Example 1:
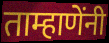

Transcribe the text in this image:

ताम्हाणेंनी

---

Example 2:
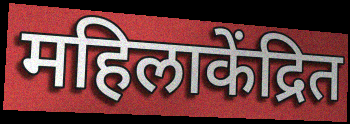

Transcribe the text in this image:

महिलाकेंद्रित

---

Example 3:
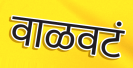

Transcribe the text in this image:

वाळवटं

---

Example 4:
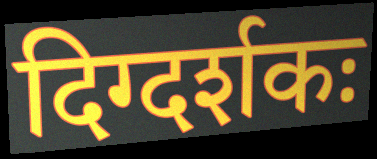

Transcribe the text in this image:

दिग्दर्शकः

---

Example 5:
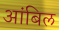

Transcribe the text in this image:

आंबिल